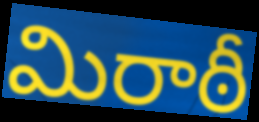
మిరాఠీ